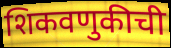
शिकवणुकीची